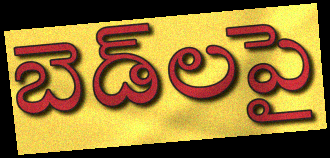
బెడ్‌లపై